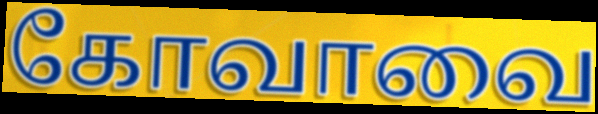
கோவாவை